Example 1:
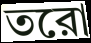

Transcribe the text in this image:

তরো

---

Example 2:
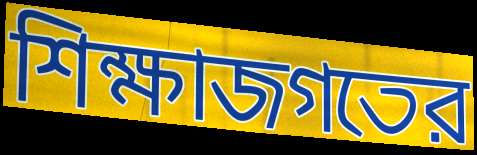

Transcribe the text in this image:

শিক্ষাজগতের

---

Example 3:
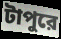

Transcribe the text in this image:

টাপুরে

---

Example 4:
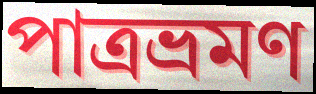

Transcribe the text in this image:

পাত্রভ্রমণ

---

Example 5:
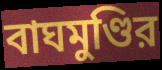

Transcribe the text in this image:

বাঘমুণ্ডির